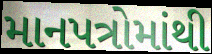
માનપત્રોમાંથી